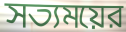
সত্যময়ের